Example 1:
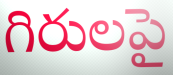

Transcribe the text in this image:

గిరులపై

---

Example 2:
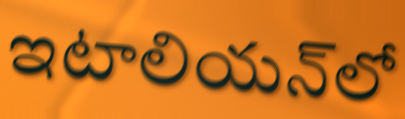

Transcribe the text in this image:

ఇటాలియన్‌లో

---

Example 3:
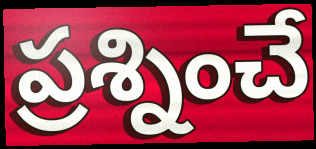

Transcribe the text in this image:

ప్రశ్నించే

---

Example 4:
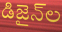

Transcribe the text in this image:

డిజైన్‌ల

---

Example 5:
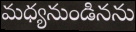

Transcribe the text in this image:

మధ్యనుండినను